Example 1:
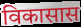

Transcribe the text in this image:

विकासास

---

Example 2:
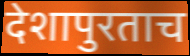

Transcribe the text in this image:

देशापुरताच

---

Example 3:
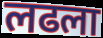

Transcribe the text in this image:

लढला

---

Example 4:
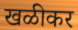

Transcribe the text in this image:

खळीकर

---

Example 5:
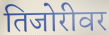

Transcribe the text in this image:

तिजोरीवर